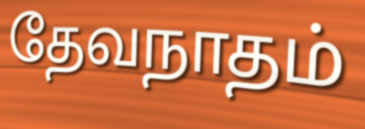
தேவநாதம்